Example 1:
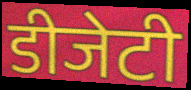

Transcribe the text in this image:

डीजेटी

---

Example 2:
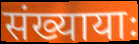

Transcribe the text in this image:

संख्यायाः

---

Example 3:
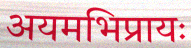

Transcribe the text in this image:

अयमभिप्रायः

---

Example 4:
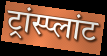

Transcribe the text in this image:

ट्रांस्प्लांट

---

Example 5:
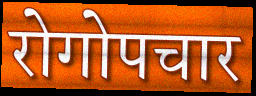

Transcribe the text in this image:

रोगोपचार